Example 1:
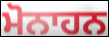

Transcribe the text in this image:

ਮੋਨਾਹਨ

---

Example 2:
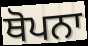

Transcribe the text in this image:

ਥੋਪਨਾ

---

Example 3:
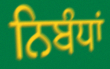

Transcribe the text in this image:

ਨਿਬੰਧਾਂ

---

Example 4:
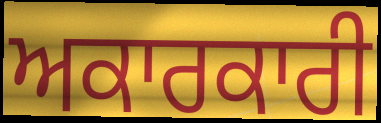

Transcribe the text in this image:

ਅਕਾਰਕਾਰੀ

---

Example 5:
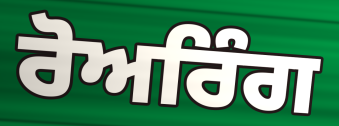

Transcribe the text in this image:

ਰੋਅਰਿੰਗ